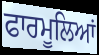
ਫਾਰਮੂਲਿਆਂ